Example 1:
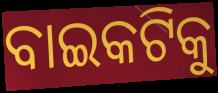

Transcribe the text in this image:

ବାଇକଟିକୁ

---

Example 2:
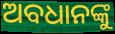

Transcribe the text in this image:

ଅବଧାନଙ୍କୁ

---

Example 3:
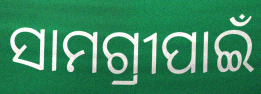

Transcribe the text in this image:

ସାମଗ୍ରୀପାଇଁ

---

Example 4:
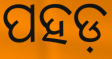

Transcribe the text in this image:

ପହଡ଼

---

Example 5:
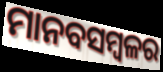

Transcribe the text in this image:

ମାନବସମ୍ବଳର